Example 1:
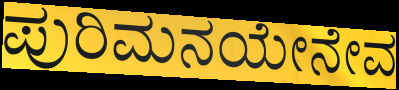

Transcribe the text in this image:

ಪುರಿಮನಯೇನೇವ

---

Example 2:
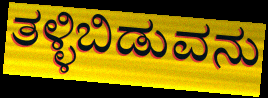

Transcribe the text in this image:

ತಳ್ಳಿಬಿಡುವನು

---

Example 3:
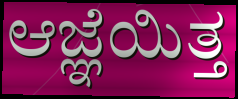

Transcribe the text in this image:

ಆಜ್ಞೆಯಿತ್ತ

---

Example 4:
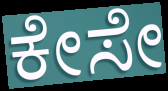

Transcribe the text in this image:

ಕೇಸೇ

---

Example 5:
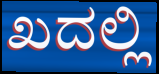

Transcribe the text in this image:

ಖದಲ್ಲಿ